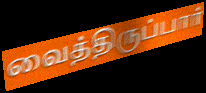
வைத்திருப்பார்